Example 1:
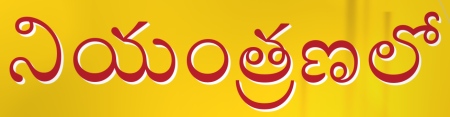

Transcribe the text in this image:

నియంత్రణలో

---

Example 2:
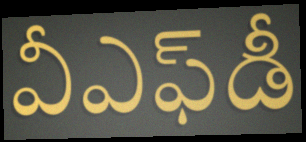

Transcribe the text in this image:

వీఎఫ్‌డీ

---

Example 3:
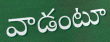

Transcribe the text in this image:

వాడంటూ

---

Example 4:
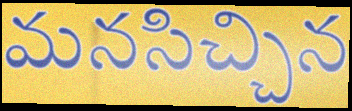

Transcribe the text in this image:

మనసిచ్చిన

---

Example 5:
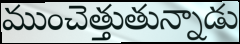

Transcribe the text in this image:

ముంచెత్తుతున్నాడు